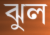
ঝুল